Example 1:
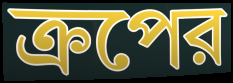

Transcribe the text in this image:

ক্রপের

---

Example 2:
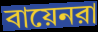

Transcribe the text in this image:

বায়েনরা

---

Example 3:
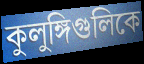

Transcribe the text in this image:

কুলুঙ্গিগুলিকে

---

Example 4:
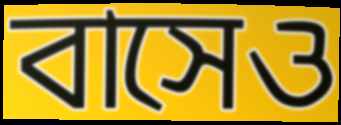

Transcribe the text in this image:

বাসেও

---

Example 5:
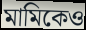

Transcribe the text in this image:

মামিকেও